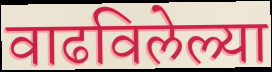
वाढविलेल्या